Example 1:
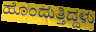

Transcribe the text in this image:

ಹೊಂದುತ್ತಿದ್ದಳು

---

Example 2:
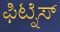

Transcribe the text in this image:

ಫಿಟ್ನೆಸ್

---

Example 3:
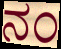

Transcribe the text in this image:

ನಂ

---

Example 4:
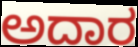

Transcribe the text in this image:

ಅದಾರ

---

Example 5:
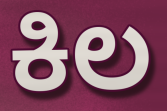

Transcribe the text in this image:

ಕಿಲ